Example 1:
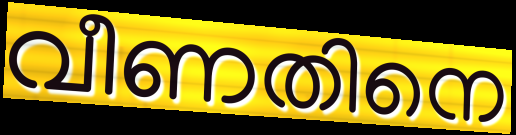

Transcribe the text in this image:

വീണതിനെ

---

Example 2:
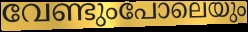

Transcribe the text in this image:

വേണ്ടുംപോലെയും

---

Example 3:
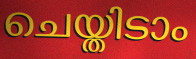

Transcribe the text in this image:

ചെയ്തിടാം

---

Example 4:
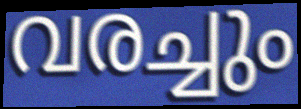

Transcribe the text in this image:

വരച്ചും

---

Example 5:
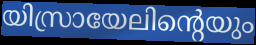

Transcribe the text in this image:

യിസ്രായേലിന്റെയും